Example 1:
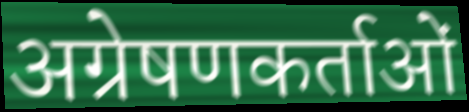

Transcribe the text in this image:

अग्रेषणकर्ताओं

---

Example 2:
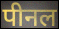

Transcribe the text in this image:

पीनल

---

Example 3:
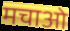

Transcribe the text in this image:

मचाओ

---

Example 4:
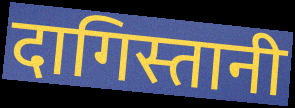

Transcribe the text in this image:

दागिस्तानी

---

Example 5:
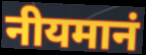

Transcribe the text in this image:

नीयमानं